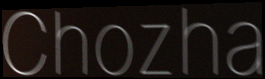
Chozha